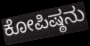
ಕೋಪಿಷ್ಠನು